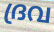
ദ്രവ